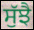
ਸੁੱਝੈ